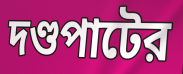
দণ্ডপাটের